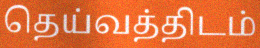
தெய்வத்திடம்